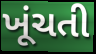
ખૂંચતી